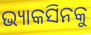
ଭ୍ୟାକସିନକୁ